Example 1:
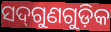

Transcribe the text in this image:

ସଦ୍‌ଗୁଣଗୁଡ଼ିକ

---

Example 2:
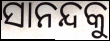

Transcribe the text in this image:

ସାନନ୍ଦକୁ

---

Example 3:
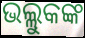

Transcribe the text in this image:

ଭଲ୍ଲୁକଙ୍କ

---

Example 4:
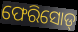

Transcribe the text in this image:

ଫେରିସୋଡ୍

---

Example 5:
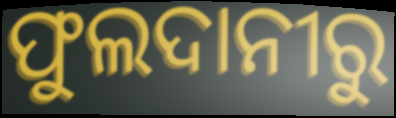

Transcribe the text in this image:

ଫୁଲଦାନୀରୁ